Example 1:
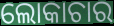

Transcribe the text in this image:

ଲୋକାଚାର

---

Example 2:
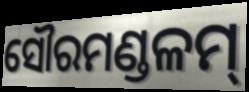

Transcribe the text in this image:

ସୌରମଣ୍ଡଳମ୍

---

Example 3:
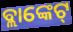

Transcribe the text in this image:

ବ୍ଲାଙ୍କେଟ୍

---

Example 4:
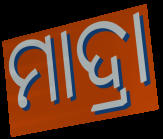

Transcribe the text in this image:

ମାଦ୍ରା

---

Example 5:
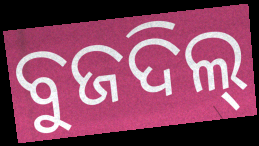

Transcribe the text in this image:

ବୁଜଦିଲ୍